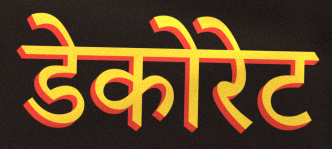
डेकोरेट